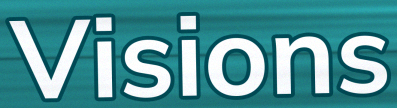
Visions